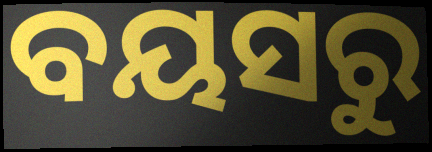
ବୟସରୁ